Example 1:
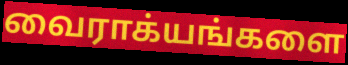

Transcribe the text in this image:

வைராக்யங்களை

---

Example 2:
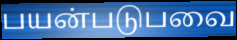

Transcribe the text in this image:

பயன்படுபவை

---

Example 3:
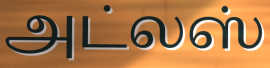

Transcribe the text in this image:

அட்லஸ்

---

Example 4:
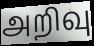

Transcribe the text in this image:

அறிவு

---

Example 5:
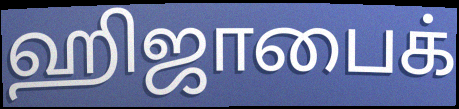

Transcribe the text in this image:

ஹிஜாபைக்